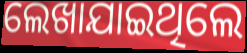
ଲେଖାଯାଇଥିଲେ